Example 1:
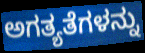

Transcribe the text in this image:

ಅಗತ್ಯತೆಗಳನ್ನು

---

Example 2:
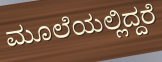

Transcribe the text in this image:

ಮೂಲೆಯಲ್ಲಿದ್ದರೆ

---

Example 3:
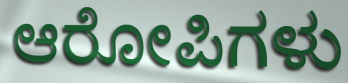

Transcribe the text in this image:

ಆರೋಪಿಗಳು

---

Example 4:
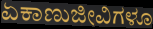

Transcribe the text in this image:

ಏಕಾಣುಜೀವಿಗಳೂ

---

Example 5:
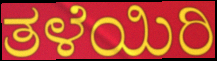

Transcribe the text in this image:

ತಳೆಯಿರಿ